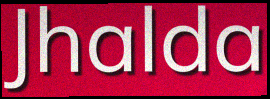
Jhalda